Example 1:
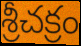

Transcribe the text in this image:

శ్రీచక్రం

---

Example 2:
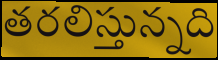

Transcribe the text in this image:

తరలిస్తున్నది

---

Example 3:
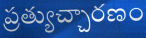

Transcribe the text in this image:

ప్రత్యుచ్చారణం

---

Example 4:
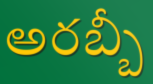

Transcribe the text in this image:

అరబ్బీ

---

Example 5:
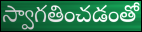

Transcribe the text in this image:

స్వాగతించడంతో